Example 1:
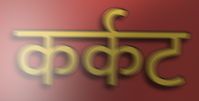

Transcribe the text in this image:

कर्कट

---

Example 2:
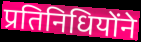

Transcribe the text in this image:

प्रतिनिधियोंने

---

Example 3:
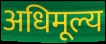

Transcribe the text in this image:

अधिमूल्य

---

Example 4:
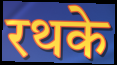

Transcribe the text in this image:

रथके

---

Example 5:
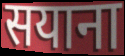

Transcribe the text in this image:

सयाना